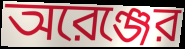
অরেঞ্জের